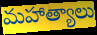
మహాత్యాలు